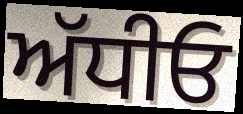
ਅੱਧੀਓ